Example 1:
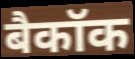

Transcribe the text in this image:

बैकॉक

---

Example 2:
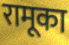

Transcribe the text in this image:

रामूका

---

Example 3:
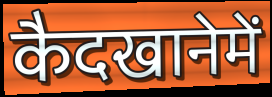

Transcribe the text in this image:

कैदखानेमें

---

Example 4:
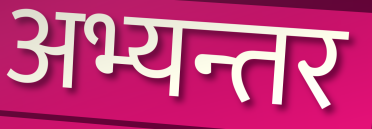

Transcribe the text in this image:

अभ्यन्तर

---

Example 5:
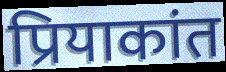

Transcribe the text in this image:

प्रियाकांत